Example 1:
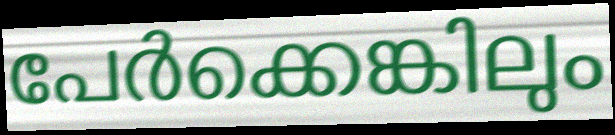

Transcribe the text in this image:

പേർക്കെങ്കിലും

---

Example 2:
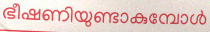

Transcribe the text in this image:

ഭീഷണിയുണ്ടാകുമ്പോൾ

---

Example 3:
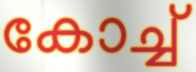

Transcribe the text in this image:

കോച്ച്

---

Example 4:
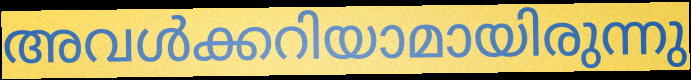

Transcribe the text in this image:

അവൾക്കറിയാമായിരുന്നു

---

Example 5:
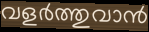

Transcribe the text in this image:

വളർത്തുവാൻ